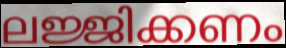
ലജ്ജിക്കണം